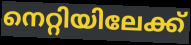
നെറ്റിയിലേക്ക്